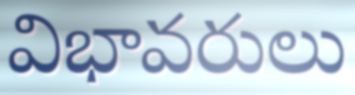
విభావరులు